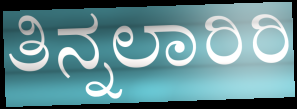
ತಿನ್ನಲಾರಿರಿ